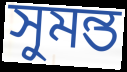
সুমন্ত